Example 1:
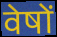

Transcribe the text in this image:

वेषों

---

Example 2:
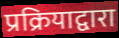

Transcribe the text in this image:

प्रक्रियाद्वारा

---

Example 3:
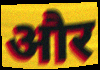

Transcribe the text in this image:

और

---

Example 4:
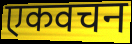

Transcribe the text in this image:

एकवचन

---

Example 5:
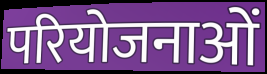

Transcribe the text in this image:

परियोजनाओं